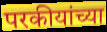
परकीयांच्या